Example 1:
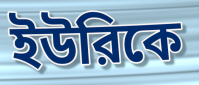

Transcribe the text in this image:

ইউরিকে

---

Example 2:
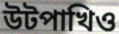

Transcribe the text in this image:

উটপাখিও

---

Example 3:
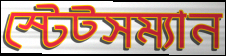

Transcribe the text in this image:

স্টেট্সম্যান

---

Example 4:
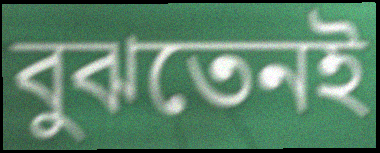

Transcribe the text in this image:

বুঝতেনই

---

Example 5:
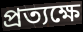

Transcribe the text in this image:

প্রত্যক্ষে